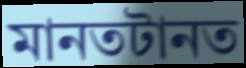
মানতটানত